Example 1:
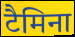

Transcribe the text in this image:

टैमिना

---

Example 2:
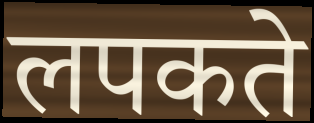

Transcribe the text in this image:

लपकते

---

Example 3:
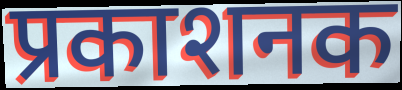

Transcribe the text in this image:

प्रकाशनक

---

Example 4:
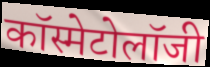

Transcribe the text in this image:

कॉस्मेटोलॉजी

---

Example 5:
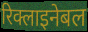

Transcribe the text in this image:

रिक्लाइनेबल